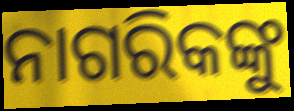
ନାଗରିକଙ୍କୁ